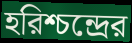
হরিশ্চন্দ্রের